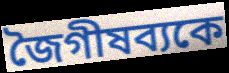
জৈগীষব্যকে